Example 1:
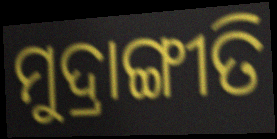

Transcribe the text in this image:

ମୁଦ୍ରାଙ୍ଗୀତି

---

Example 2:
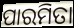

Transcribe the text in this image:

ପାରମିତା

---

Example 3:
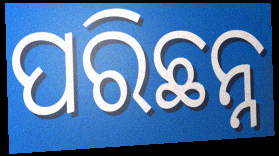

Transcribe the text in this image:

ପରିଛନ୍ନ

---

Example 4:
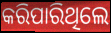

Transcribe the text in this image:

କରିପାରିଥିଲେ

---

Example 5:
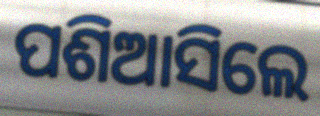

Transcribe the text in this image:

ପଶିଆସିଲେ